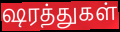
ஷரத்துகள்